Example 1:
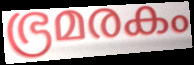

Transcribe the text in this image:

ഭ്രമരകം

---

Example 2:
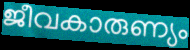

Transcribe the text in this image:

ജീവകാരുണ്യം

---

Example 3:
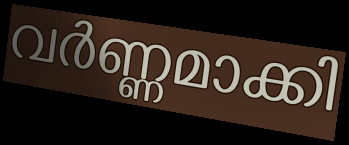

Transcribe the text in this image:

വർണ്ണമാക്കി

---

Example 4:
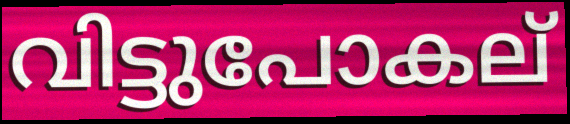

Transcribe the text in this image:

വിട്ടുപോകല്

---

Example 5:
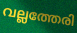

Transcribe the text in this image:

വല്ലത്തേരി